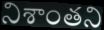
నిశాంతని